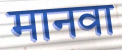
मानवा